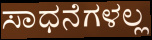
ಸಾಧನೆಗಳಲ್ಲ